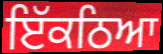
ਇੱਕਠਿਆ